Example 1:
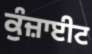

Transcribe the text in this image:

ਕੁੰਜ਼ਾਈਟ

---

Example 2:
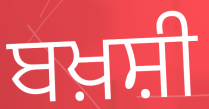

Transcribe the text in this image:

ਬਖ਼ਸ਼ੀ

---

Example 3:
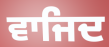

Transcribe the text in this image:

ਵਾਜਿਦ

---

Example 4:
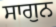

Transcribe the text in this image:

ਸਾਗੁਨ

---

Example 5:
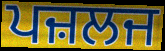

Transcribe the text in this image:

ਪਜ਼ਲਜ